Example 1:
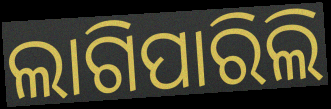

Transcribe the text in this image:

ଲାଗିପାରିଲି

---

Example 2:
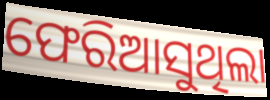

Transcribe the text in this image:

ଫେରିଆସୁଥିଲା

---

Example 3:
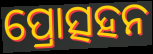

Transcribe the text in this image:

ପ୍ରୋତ୍ସହନ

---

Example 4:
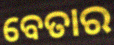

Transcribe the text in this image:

ବେତାର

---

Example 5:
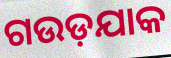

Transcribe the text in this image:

ଗଉଡ଼ଯାକ